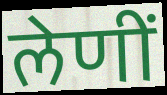
लेणीं